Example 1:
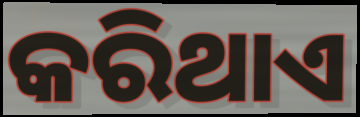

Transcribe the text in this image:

କରିଥାଏ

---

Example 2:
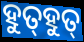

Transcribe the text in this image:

ହୁତ୍‍ହୁତ୍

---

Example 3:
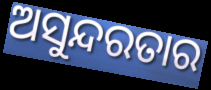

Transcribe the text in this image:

ଅସୁନ୍ଦରତାର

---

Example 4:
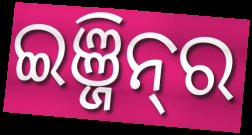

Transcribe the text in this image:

ଇଞ୍ଜିନ୍‌ର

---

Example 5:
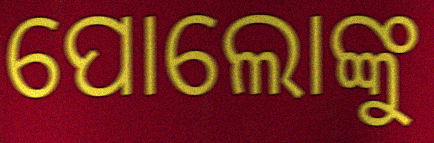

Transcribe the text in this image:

ପୋଲୋଙ୍କୁ